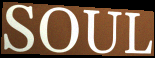
SOUL